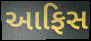
આફિસ